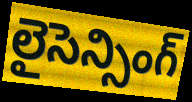
లైసెన్సింగ్